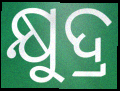
କ୍ଷୁଦ୍ର